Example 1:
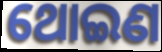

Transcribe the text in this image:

ଥୋଇଣ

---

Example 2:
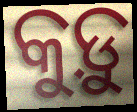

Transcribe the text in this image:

କୁଡ଼ୁ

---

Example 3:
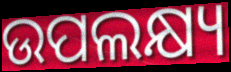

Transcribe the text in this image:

ଉପଲକ୍ଷ୍ୟ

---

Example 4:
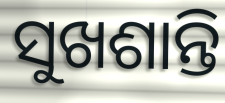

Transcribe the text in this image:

ସୁଖଶାନ୍ତି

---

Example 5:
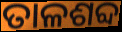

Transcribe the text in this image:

ତାଳଶବ୍ଦ